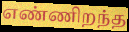
எண்ணிறந்த